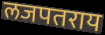
लजपतराय